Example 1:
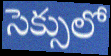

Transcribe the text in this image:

సెక్సులో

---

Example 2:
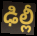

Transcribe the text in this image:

ఢిల్లీ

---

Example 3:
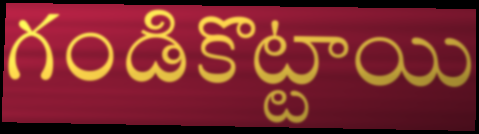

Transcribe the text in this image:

గండికొట్టాయి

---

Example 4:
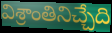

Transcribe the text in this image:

విశ్రాంతినిచ్చేది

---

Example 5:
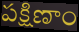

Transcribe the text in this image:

పక్షిణాం